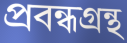
প্রবন্ধগ্রন্থ